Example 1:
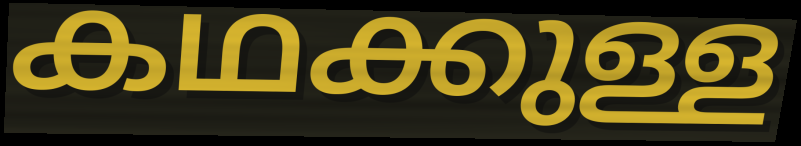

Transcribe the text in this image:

കഥക്കുള്ള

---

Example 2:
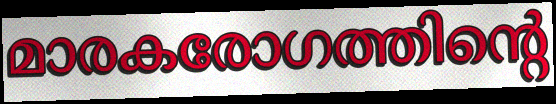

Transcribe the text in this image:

മാരകരോഗത്തിന്റെ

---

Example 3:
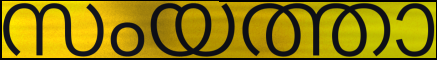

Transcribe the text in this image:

സംയത്താ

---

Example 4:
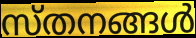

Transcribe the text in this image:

സ്തനങ്ങൾ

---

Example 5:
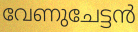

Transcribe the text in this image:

വേണുചേട്ടൻ